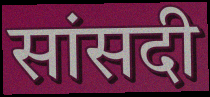
सांसदी